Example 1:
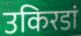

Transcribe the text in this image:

उकिरडां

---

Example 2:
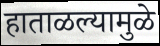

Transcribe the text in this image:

हाताळल्यामुळे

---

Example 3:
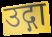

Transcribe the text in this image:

उद्गा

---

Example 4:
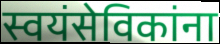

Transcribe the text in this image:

स्वयंसेविकांना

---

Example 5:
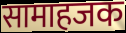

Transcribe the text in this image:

सामाहजक